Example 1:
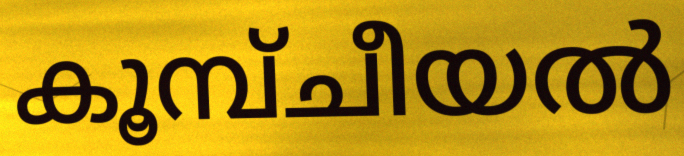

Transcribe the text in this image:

കൂമ്പ്ചീയൽ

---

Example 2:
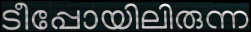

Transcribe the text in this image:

ടീപ്പോയിലിരുന്ന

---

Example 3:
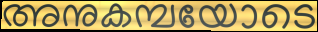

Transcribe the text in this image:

അനുകമ്പയോടെ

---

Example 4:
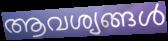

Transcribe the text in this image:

ആവശ്യങ്ങൾ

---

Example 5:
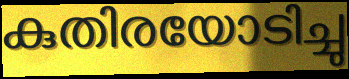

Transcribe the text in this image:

കുതിരയോടിച്ചു